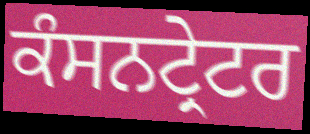
ਕੰਸਨਟ੍ਰੇਟਰ